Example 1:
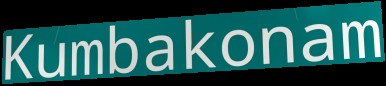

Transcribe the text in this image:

Kumbakonam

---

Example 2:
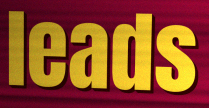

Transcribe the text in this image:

leads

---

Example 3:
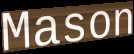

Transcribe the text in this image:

Mason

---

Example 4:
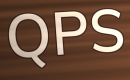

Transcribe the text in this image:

QPS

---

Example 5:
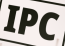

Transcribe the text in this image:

IPC